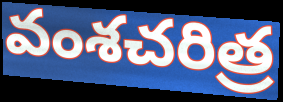
వంశచరిత్ర